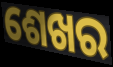
ଶେଖର